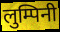
लुम्पिनी